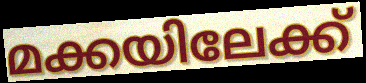
മക്കയിലേക്ക്